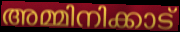
അമ്മിനിക്കാട്